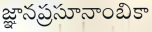
జ్ఞానప్రసూనాంబికా